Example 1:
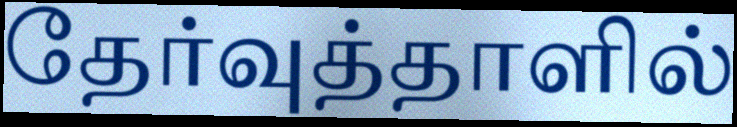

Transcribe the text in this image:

தேர்வுத்தாளில்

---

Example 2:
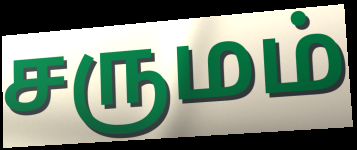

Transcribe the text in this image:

சருமம்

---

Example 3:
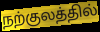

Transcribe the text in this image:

நற்குலத்தில்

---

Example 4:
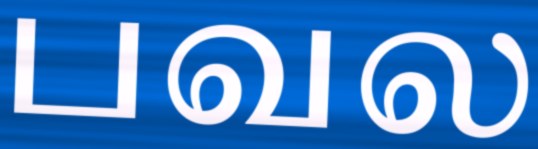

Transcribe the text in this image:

பவல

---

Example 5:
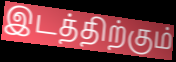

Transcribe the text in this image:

இடத்திற்கும்